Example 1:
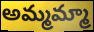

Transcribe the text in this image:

అమ్మమ్మా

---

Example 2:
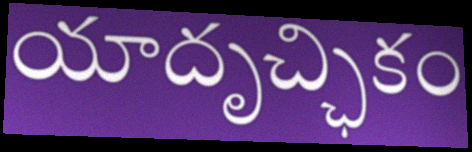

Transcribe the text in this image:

యాదృచ్ఛికం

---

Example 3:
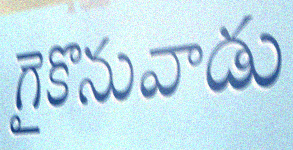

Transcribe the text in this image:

గైకొనువాడు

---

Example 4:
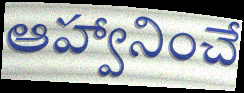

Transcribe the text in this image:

ఆహ్వానించే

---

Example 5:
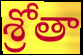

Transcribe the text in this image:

శ్రోతా